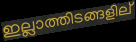
ഇല്ലാത്തിടങ്ങളില്